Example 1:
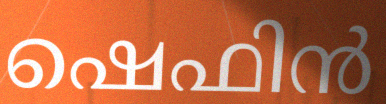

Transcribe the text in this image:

ഷെഫിൻ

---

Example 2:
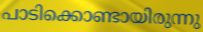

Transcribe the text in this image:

പാടിക്കൊണ്ടായിരുന്നു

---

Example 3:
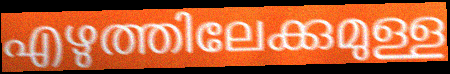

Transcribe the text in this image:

എഴുത്തിലേക്കുമുള്ള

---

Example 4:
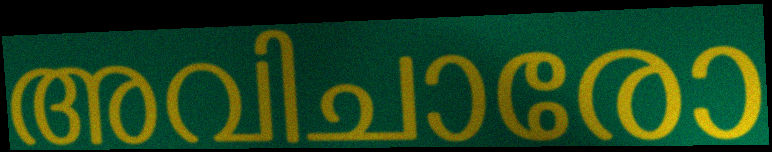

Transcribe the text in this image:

അവിചാരോ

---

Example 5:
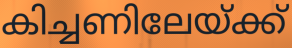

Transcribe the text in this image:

കിച്ചണിലേയ്ക്ക്